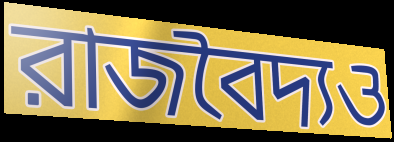
রাজবৈদ্যও